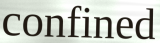
confined